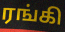
ரங்கி